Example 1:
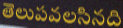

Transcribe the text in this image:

తెలుపవలసినది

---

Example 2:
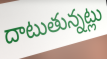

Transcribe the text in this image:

దాటుతున్నట్లు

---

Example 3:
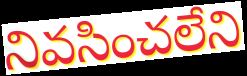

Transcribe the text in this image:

నివసించలేని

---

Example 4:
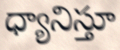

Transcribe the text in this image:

ధ్యానిస్తూ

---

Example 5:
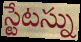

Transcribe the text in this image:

స్టేటస్ను